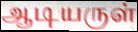
ஆடியருள்